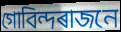
গোবিন্দৰাজনে